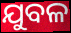
ଯୁବଳ